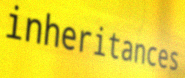
inheritances